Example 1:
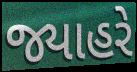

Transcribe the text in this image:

જ્યાહરે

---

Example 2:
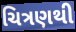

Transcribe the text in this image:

ચિત્રણથી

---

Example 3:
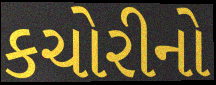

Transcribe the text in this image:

કચોરીનો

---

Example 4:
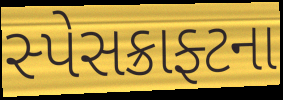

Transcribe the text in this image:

સ્પેસક્રાફ્ટના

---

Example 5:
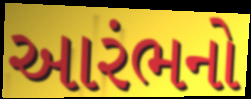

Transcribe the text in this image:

આરંભનો